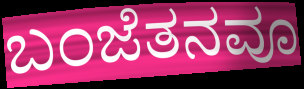
ಬಂಜೆತನವೂ